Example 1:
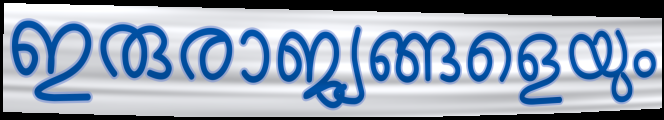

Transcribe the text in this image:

ഇരുരാജ്യങ്ങളെയും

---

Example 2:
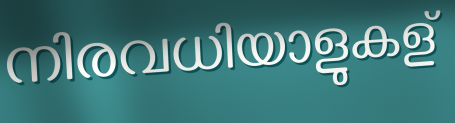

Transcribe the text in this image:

നിരവധിയാളുകള്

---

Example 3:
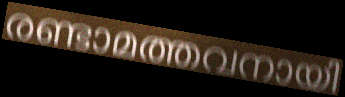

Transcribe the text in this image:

രണ്ടാമത്തവനായി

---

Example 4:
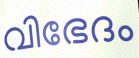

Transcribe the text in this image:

വിഭേദം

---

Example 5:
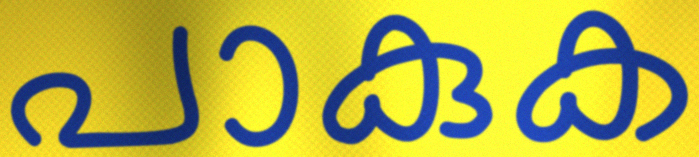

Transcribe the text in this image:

പാകുക